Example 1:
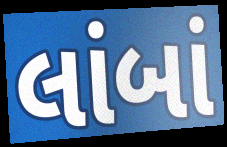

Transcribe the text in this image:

લાંબાં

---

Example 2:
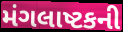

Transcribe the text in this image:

મંગલાષ્ટકની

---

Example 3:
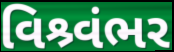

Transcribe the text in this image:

વિશ્ર્વંભર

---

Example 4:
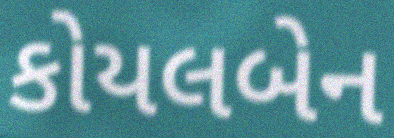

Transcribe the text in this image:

કોયલબેન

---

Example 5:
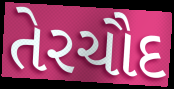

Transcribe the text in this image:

તેરચૌદ